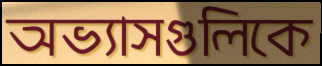
অভ্যাসগুলিকে